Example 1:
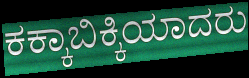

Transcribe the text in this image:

ಕಕ್ಕಾಬಿಕ್ಕಿಯಾದರು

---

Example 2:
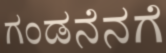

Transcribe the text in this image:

ಗಂಡನೆನಗೆ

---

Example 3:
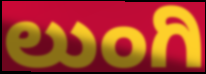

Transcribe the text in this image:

ಲುಂಗಿ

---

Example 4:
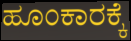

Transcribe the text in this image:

ಹೂಂಕಾರಕ್ಕೆ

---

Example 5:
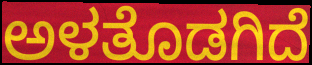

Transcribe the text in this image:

ಅಳತೊಡಗಿದೆ